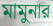
মামুনার